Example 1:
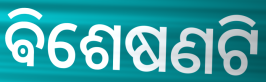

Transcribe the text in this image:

ଵିଶେଷଣଟି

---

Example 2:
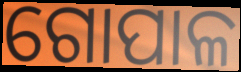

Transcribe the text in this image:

ଗୋପାଳ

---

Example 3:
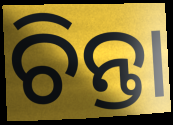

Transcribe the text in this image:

ଚିନ୍ତା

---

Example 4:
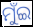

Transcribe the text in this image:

ମୁଁଇ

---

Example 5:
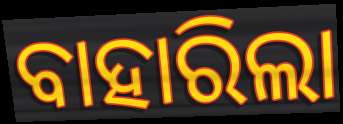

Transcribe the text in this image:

ବାହାରିଲା